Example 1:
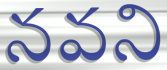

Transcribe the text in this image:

నవని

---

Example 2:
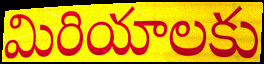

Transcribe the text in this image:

మిరియాలకు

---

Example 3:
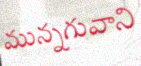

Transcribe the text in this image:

మున్నగువాని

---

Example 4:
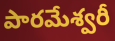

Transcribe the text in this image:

పారమేశ్వరీ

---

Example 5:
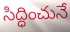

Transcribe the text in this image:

సిద్ధించునే